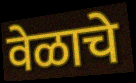
वेळाचे